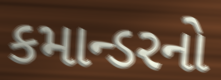
કમાન્ડરનો